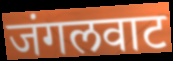
जंगलवाट